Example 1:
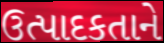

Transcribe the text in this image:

ઉત્પાદકતાને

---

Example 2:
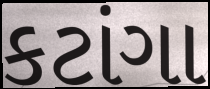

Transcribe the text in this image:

કટાંગા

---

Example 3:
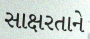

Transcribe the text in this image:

સાક્ષરતાને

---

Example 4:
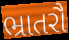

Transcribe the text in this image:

ભ્રાતરૌ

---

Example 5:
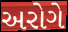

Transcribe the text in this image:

અરોગે